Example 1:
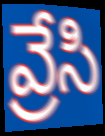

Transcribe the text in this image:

వ్రేసి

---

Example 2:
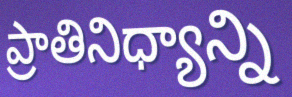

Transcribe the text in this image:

ప్రాతినిధ్యాన్ని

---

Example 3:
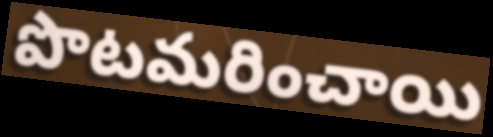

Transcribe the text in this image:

పొటమరించాయి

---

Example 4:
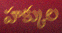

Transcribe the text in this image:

హక్కుల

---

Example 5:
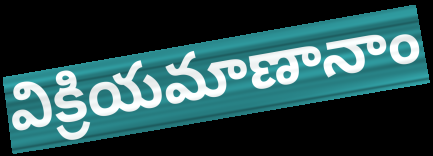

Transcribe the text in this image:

విక్రియమాణానాం